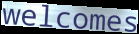
welcomes